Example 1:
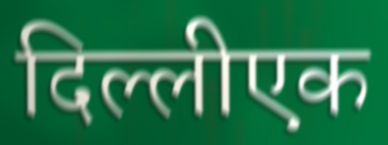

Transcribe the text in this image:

दिल्लीएक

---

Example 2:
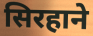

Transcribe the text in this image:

सिरहाने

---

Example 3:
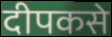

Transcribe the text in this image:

दीपकसे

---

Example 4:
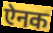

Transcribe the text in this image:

ऐनक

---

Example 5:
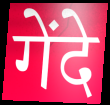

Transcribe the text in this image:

गेंदे